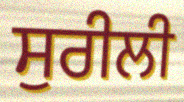
ਸੁਰੀਲੀ